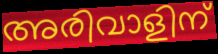
അരിവാളിന്